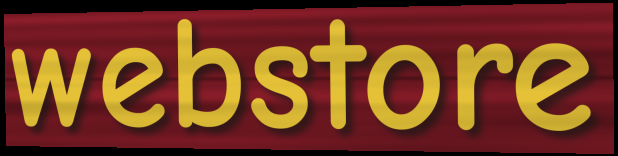
webstore